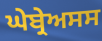
ਘੇਬ੍ਰੇਅਸਸ